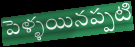
పెళ్ళయినప్పటి